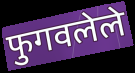
फुगवलेले